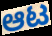
ಆಟ